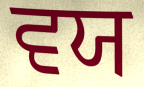
ਵਯ